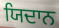
ਯਿਦਾਨ